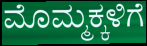
ಮೊಮ್ಮಕ್ಕಳಿಗೆ